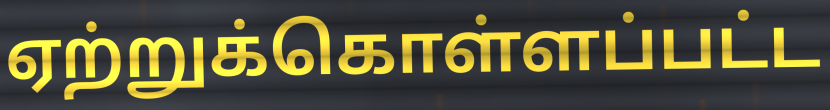
ஏற்றுக்கொள்ளப்பட்ட